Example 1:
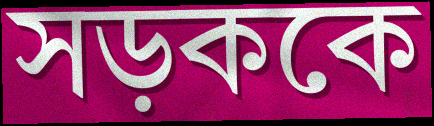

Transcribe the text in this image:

সড়ককে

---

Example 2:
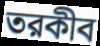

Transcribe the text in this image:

তরকীব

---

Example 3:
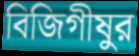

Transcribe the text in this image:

বিজিগীষুর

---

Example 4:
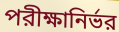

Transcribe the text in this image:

পরীক্ষানির্ভর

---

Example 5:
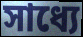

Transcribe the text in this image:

সাধ্যে